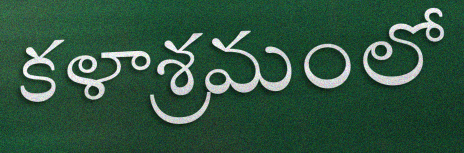
కళాశ్రమంలో